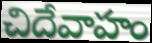
చిదేవాహం